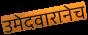
उमेदवारानेच